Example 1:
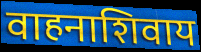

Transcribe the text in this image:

वाहनाशिवाय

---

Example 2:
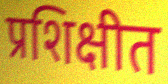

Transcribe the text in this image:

प्रशिक्षीत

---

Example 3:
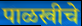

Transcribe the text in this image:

पाळखीचे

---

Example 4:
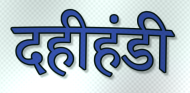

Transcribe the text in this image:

दहीहंडी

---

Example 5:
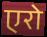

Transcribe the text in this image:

एरो